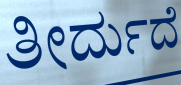
ತೀರ್ದುದೆ